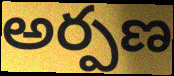
అర్పణ